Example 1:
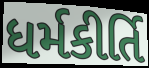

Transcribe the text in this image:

ધર્મકીર્તિ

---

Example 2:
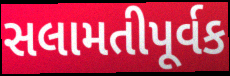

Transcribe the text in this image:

સલામતીપૂર્વક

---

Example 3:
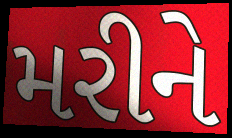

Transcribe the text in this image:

મરીને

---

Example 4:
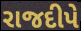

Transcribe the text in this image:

રાજદીપે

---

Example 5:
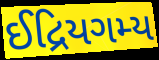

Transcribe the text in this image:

ઈદ્રિયગમ્ય